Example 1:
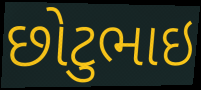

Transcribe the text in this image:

છોટુભાઇ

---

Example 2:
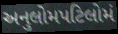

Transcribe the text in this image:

અનુલોમપટિલોમં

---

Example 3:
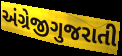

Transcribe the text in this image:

અંગ્રેજીગુજરાતી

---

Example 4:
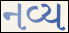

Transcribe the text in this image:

નવ્ય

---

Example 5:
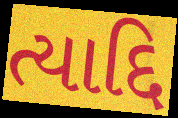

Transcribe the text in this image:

ત્યાદ્દિ